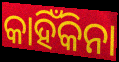
କାହିଁକିନା